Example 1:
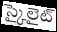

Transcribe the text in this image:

స్కైలైట్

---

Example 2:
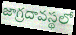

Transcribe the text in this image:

జాగ్రదావస్థలో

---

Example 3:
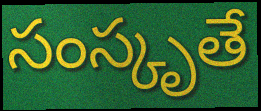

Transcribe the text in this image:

సంస్కృతే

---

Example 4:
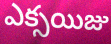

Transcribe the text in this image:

ఎక్సయిజు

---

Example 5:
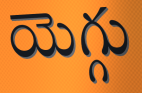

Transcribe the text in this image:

యెగ్గు